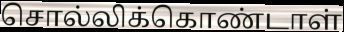
சொல்லிக்கொண்டாள்